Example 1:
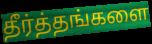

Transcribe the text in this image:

தீர்த்தங்களை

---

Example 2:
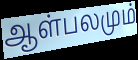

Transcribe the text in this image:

ஆள்பலமும்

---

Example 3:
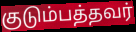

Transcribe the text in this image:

குடும்பத்தவர்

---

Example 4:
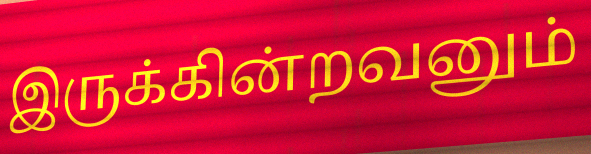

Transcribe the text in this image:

இருக்கின்றவனும்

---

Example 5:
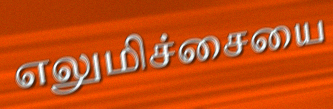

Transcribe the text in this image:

எலுமிச்சையை